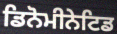
ਡਿਨੋਮੀਨੇਟਿਡ